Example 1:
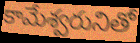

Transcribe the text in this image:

కామేశ్వరునితో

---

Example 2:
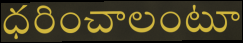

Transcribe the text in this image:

ధరించాలంటూ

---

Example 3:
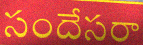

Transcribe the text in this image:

సందేసరా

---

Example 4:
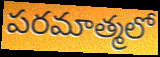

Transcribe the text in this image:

పరమాత్మలో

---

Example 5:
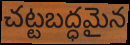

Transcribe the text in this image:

చట్టబద్ధమైన